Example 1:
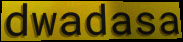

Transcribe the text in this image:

dwadasa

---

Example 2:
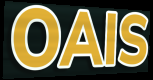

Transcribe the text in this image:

OAIS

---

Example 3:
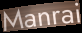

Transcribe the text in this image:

Manrai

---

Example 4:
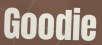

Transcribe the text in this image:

Goodie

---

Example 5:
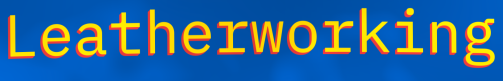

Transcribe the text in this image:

Leatherworking